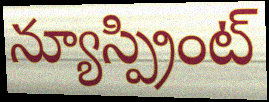
న్యూస్ప్రింట్